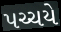
પચ્ચયે